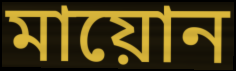
মায়োন